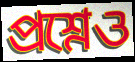
প্রশ্নেও